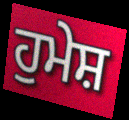
ਹੁਮੇਸ਼